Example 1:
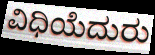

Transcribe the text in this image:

ವಿಧಿಯೆದುರು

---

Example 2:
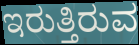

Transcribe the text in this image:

ಇರುತ್ತಿರುವ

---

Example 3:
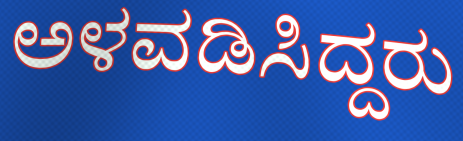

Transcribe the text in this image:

ಅಳವಡಿಸಿದ್ದರು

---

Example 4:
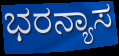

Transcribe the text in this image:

ಭರನ್ಯಾಸ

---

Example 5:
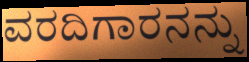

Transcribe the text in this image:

ವರದಿಗಾರನನ್ನು